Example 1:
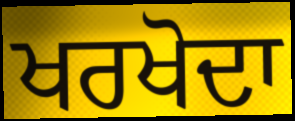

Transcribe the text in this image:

ਖਰਖੋਦਾ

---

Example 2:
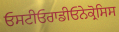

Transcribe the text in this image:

ਓਸਟੀਓਰਾਡੀਓਨੇਕ੍ਰੋਸਿਸ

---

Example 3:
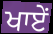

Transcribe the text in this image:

ਖਾਏਂ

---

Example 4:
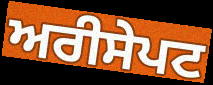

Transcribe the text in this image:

ਅਰੀਸੇਪਟ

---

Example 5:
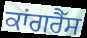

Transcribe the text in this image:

ਕਾਂਗਰੈੱਸ